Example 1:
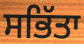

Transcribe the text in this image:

ਸਭਿੱਤਾ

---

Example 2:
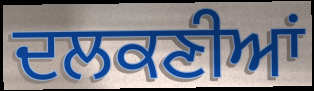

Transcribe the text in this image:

ਦਲਕਣੀਆਂ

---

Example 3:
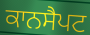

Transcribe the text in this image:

ਕਾਨਸੈਪਟ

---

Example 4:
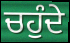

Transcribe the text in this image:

ਚਹੁੰਦੇ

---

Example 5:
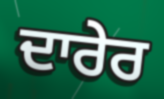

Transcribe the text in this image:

ਦਾਰੇਰ